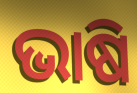
ଭାଷି